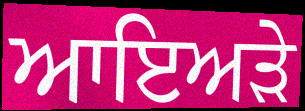
ਆਇਅੜੇ